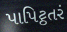
પાપિટ્ઠતરં